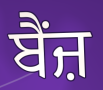
ਬੈਂਜ਼